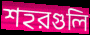
শহরগুলি